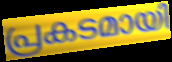
പ്രകടമായി